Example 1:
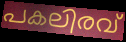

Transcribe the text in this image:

പകലിരവ്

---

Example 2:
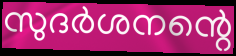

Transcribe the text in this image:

സുദർശനന്റെ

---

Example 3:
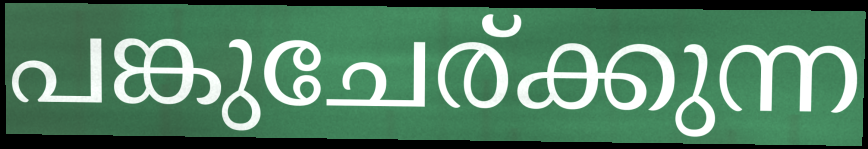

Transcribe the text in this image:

പങ്കുചേര്ക്കുന്ന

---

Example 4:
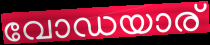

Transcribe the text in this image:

വോഡയാര്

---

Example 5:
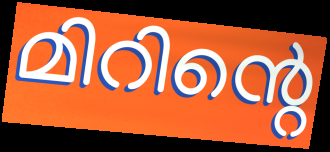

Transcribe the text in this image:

മിറിന്റെ